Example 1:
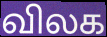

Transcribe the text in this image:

விலக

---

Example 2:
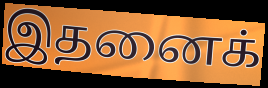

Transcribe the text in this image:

இதனைக்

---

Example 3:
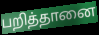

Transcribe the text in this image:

பறித்தானை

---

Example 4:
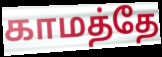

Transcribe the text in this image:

காமத்தே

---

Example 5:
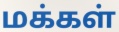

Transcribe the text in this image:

மக்கள்